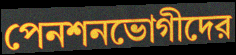
পেনশনভোগীদের